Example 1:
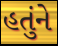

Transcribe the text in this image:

હતુંને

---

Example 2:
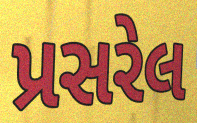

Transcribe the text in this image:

પ્રસરેલ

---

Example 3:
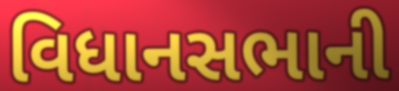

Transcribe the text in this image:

વિધાનસભાની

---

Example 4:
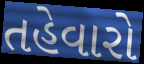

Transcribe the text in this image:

તહેવારો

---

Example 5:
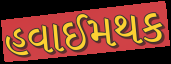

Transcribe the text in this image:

હવાઈમથક